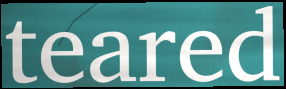
teared